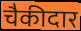
चैकीदार